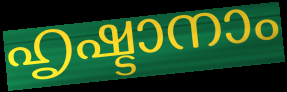
ഹൃഷ്ടാനാം